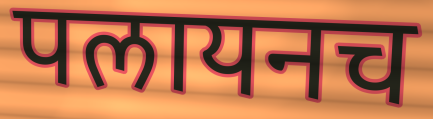
पलायनच